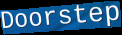
Doorstep